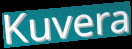
Kuvera